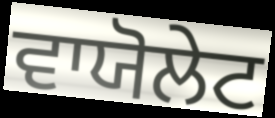
ਵਾਯੋਲੇਟ